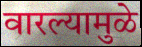
वारल्यामुळे